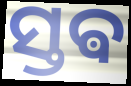
ସ୍ତଵ